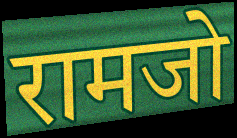
रामजो